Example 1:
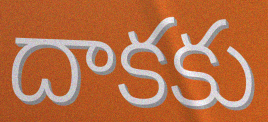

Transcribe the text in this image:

దాకకు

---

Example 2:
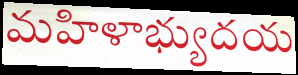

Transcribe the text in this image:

మహిళాభ్యుదయ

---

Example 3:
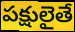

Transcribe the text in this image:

పక్షులైతే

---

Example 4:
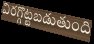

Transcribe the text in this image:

విరగ్గొట్టబడుతుంది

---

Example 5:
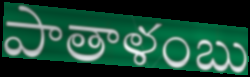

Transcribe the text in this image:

పాతాళంబు